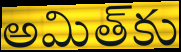
అమిత్‌కు